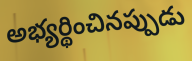
అభ్యర్థించినప్పుడు